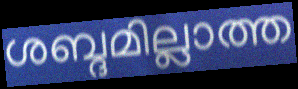
ശബ്ദമില്ലാത്ത